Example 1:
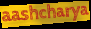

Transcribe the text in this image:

aashcharya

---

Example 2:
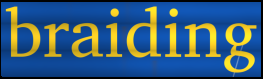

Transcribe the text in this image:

braiding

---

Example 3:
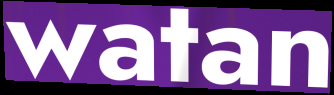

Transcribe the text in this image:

watan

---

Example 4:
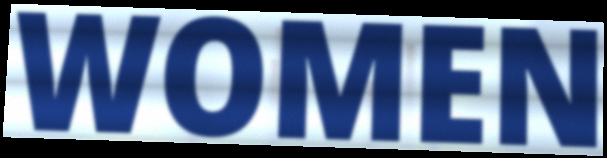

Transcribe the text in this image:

WOMEN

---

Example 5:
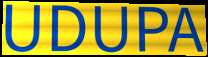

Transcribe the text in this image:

UDUPA